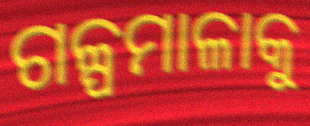
ଗଳ୍ପମାଳାକୁ